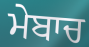
ਮੇਬਾਚ